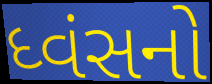
ધ્વંસનો